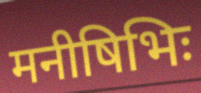
मनीषिभिः